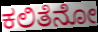
ಕಲಿತೆನೋ